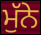
ਮੁੱਨੇ